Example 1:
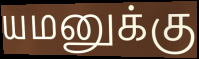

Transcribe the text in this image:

யமனுக்கு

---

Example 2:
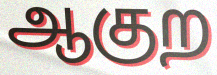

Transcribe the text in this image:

ஆகுற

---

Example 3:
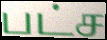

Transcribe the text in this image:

பட்ச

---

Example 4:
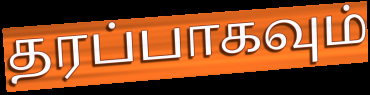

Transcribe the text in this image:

தரப்பாகவும்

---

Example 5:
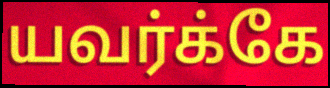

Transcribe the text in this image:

யவர்க்கே